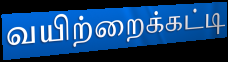
வயிற்றைக்கட்டி